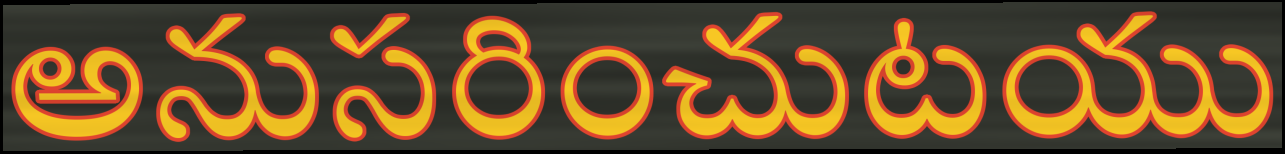
అనుసరించుటయు